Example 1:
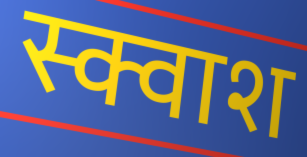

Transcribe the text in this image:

स्क्वाश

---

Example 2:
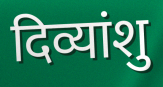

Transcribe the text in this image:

दिव्‍यांशु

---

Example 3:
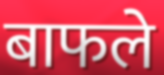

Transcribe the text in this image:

बाफले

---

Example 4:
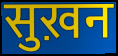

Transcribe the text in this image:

सुख़न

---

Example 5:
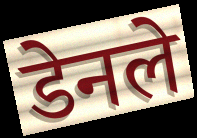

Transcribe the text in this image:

डेनले